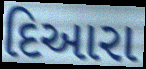
દિઆરા